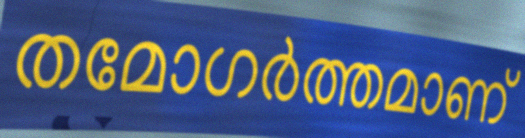
തമോഗർത്തമാണ്